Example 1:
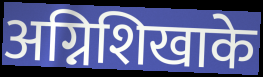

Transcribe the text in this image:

अग्निशिखाके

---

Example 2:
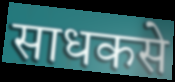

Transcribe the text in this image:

साधकसे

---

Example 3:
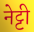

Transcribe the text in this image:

नेट्टी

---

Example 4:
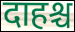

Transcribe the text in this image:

दाहश्च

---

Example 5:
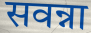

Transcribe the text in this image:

सवन्ना